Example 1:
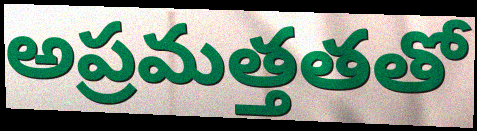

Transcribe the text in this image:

అప్రమత్తతతో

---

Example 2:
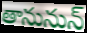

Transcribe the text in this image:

తానునున్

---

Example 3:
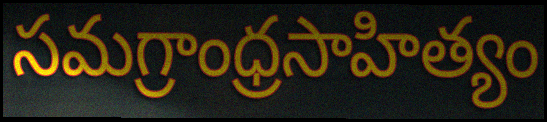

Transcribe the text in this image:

సమగ్రాంధ్రసాహిత్యం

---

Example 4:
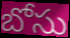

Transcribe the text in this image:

బోసు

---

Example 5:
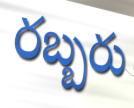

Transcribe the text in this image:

రబ్బరు